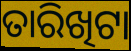
ତାରିଖିଟା